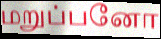
மறுப்பனோ